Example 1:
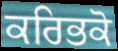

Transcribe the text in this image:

ਕਰਿਭਕੋ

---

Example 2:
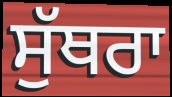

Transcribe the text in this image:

ਸੁੱਥਰਾ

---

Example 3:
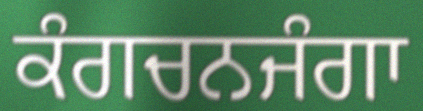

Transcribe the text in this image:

ਕੰਗਚਨਜੰਗਾ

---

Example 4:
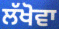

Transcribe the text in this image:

ਲੱਖੋਵਾ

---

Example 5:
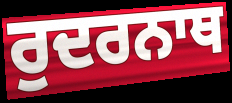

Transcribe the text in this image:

ਰੁਦਰਨਾਥ